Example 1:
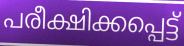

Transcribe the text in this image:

പരീക്ഷിക്കപ്പെട്ട്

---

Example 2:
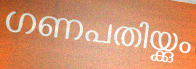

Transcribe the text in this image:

ഗണപതിയ്ക്കും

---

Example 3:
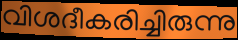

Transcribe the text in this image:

വിശദീകരിച്ചിരുന്നു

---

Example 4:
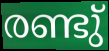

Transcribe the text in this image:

രണ്ടു്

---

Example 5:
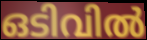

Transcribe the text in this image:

ഒടിവിൽ